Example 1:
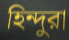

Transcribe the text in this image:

হিন্দুরা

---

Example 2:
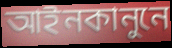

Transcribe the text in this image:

আইনকানুনে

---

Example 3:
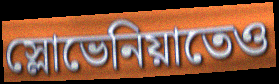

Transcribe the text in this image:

স্লোভেনিয়াতেও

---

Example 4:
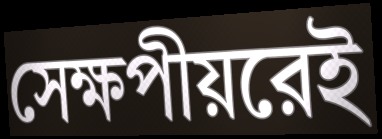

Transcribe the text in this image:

সেক্ষপীয়রেই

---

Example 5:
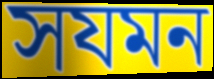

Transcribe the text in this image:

সযমন